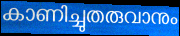
കാണിച്ചുതരുവാനും